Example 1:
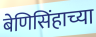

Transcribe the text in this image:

बेणिसिंहाच्या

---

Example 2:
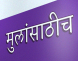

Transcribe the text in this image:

मुलांसाठीच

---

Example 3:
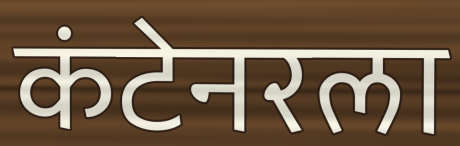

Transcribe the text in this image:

कंटेनरला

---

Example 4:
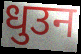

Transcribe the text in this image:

धुउन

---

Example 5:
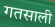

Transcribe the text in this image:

गतसाली